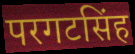
परगटसिंह